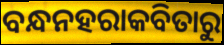
ବନ୍ଧନହରାକବିତାରୁ